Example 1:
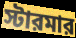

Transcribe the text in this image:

স্টারমার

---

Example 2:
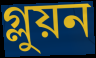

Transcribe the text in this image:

গ্লুয়ন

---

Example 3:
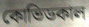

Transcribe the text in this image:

কোভিডকাল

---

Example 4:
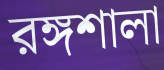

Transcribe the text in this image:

রঙ্গশালা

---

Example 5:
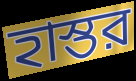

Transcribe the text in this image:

হাস্তর